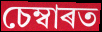
চেম্বাৰত